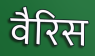
वैरिस